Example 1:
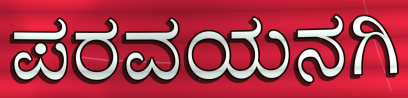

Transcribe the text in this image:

ಪರವಯನಗಿ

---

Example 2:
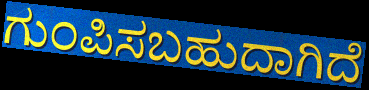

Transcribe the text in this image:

ಗುಂಪಿಸಬಹುದಾಗಿದೆ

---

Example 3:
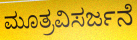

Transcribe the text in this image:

ಮೂತ್ರವಿಸರ್ಜನೆ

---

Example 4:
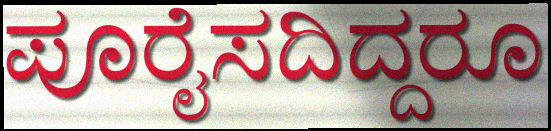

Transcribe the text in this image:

ಪೂರೈಸದಿದ್ದರೂ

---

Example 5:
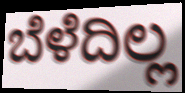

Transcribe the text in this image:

ಬೆಳೆದಿಲ್ಲ